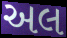
અલ